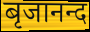
बृजानन्द